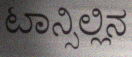
ಟಾನ್ಸಿಲ್ಲಿನ